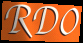
RDO